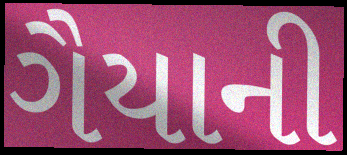
ગૈયાની